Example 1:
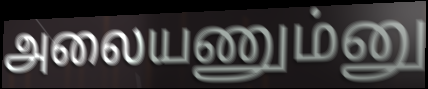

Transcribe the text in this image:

அலையணும்னு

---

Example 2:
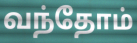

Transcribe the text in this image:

வந்தோம்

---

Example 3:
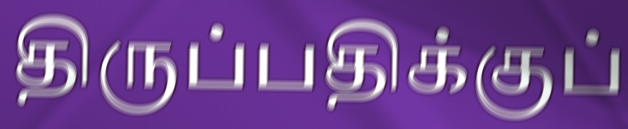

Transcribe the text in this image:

திருப்பதிக்குப்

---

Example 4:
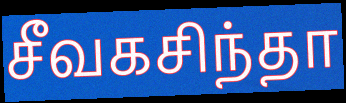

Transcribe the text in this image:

சீவகசிந்தா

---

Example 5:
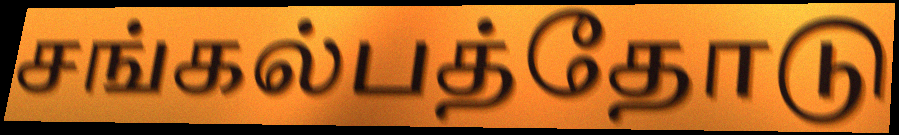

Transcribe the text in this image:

சங்கல்பத்தோடு